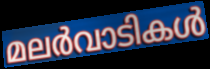
മലർവാടികൾ